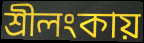
শ্রীলংকায়